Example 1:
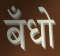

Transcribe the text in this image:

बँधो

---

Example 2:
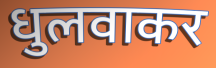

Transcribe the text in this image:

धुलवाकर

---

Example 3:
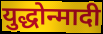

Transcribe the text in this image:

युद्धोन्मादी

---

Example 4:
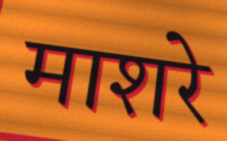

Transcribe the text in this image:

माशरे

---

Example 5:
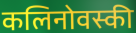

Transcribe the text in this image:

कलिनोवस्की